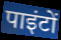
पाइंटों